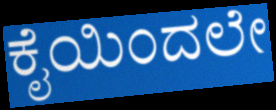
ಕೈಯಿಂದಲೇ